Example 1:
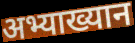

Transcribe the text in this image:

अभ्याख्यान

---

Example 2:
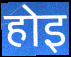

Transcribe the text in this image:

होइ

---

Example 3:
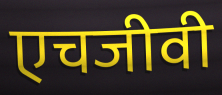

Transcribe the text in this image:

एचजीवी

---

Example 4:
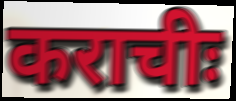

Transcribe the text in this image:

कराचीः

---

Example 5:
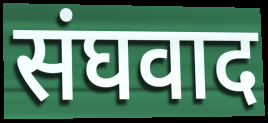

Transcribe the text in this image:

संघवाद